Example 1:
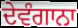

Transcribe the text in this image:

ਦੇਵੰਗਾਨਾ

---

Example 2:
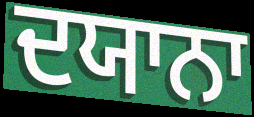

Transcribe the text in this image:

ਦਯਾਨਾ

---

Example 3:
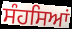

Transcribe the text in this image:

ਸੰਹਸਿਆਂ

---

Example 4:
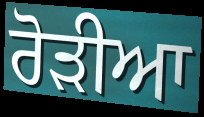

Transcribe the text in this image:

ਰੋੜੀਆ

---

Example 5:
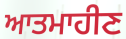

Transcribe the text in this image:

ਆਤਮਾਹੀਣ